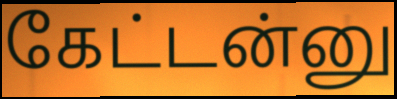
கேட்டன்னு